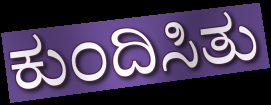
ಕುಂದಿಸಿತು